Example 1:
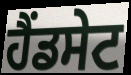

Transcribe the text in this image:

ਹੈਂਡਸੇਟ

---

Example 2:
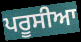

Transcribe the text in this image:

ਪਰੂਸੀਆ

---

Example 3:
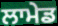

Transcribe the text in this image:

ਲਾਮੇਡ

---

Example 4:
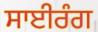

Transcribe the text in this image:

ਸਾਈਰੰਗ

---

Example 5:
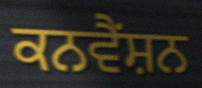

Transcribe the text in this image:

ਕਨਵੈੰਸ਼ਨ